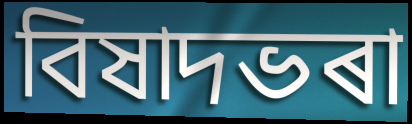
বিষাদভৰা